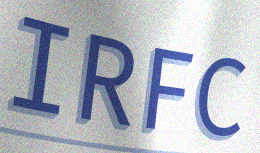
IRFC